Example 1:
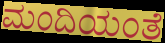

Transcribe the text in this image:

ಮಂದಿಯಂತೆ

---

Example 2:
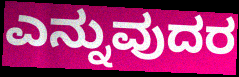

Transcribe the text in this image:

ಎನ್ನುವುದರ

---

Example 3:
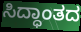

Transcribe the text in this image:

ಸಿದ್ಧಾಂತದ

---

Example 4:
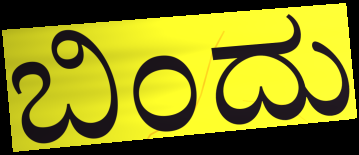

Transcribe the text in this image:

ಬಿಂದು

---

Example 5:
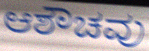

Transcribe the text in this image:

ಆಶೌಚವು